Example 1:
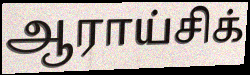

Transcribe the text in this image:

ஆராய்சிக்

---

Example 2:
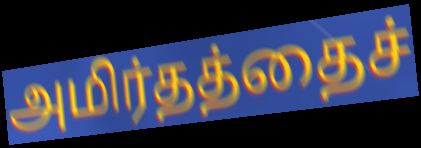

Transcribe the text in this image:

அமிர்தத்தைச்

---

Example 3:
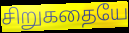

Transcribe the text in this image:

சிறுகதையே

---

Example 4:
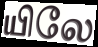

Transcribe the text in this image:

யிலே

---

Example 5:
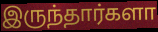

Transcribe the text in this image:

இருந்தார்களா